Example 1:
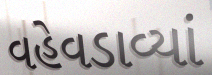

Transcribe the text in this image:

વહેવડાવ્યાં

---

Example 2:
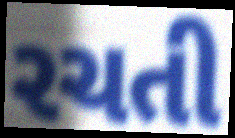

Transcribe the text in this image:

રચતી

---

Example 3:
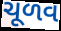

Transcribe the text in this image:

ચૂળવ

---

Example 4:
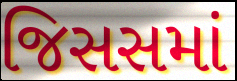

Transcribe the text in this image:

જિસસમાં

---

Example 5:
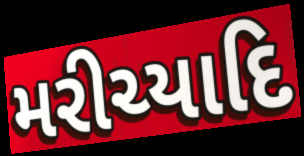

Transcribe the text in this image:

મરીચ્યાદિ